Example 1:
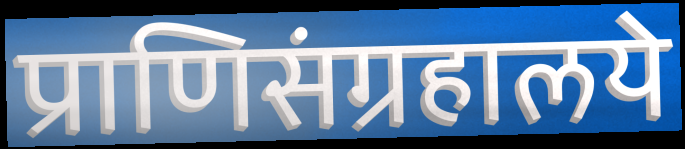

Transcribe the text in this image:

प्राणिसंग्रहालये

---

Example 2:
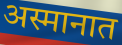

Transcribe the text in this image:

अस्मानात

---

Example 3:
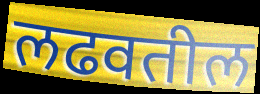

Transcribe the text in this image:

लढवतील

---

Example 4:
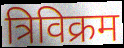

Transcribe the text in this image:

त्रिविक्रम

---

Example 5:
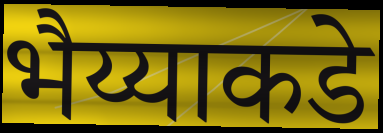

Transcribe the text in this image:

भैय्याकडे